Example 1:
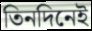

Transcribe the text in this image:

তিনদিনেই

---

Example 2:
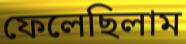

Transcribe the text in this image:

ফেলেছিলাম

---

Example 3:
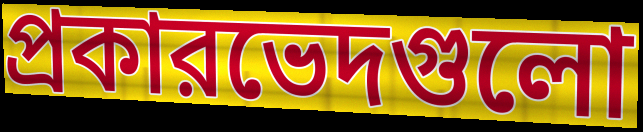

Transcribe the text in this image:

প্রকারভেদগুলো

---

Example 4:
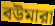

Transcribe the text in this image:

বউমারা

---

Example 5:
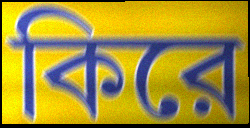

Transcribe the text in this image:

কিরে